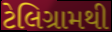
ટેલિગ્રામથી